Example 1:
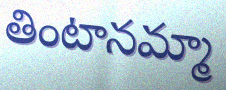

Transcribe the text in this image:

తింటానమ్మా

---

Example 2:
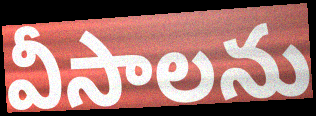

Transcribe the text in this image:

వీసాలను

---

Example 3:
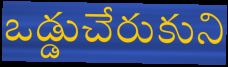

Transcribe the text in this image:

ఒడ్డుచేరుకుని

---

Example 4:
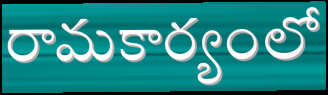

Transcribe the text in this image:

రామకార్యంలో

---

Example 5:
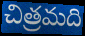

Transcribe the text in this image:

చిత్రమది